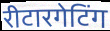
रीटारगेटिंग